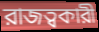
রাজত্বকারী